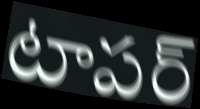
టాపర్